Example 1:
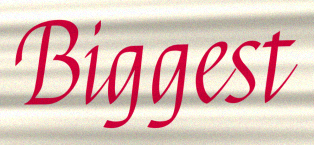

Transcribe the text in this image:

Biggest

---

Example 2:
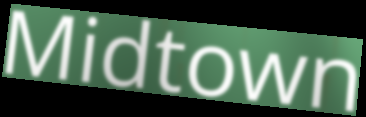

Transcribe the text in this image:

Midtown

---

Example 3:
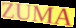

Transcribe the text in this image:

ZUMA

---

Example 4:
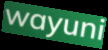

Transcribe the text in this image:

wayuni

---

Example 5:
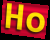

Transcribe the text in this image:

Ho